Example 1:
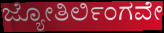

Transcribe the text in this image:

ಜ್ಯೋತಿರ್ಲಿಂಗವೇ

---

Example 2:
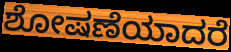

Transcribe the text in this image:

ಶೋಷಣೆಯಾದರೆ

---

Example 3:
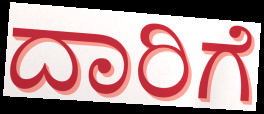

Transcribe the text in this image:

ದಾರಿಗೆ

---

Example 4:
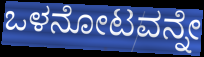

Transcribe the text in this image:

ಒಳನೋಟವನ್ನೇ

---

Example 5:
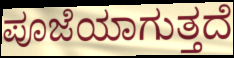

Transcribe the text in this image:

ಪೂಜೆಯಾಗುತ್ತದೆ